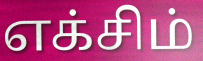
எக்சிம்